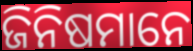
ଜିନିଷମାନେ